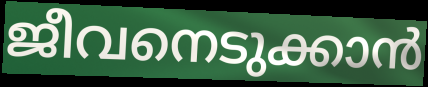
ജീവനെടുക്കാൻ